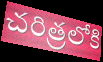
చరిత్రలోకి